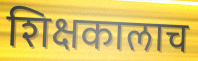
शिक्षकालाच